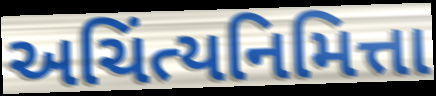
અચિંત્યનિમિત્તા